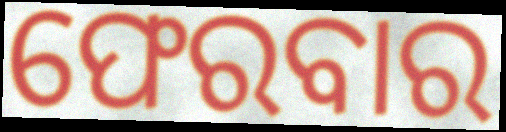
ଫେରବାର